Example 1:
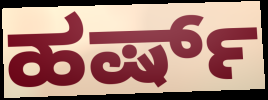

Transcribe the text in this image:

ಹರ್ಷ್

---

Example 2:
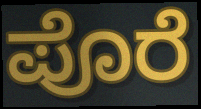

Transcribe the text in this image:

ಪೊರೆ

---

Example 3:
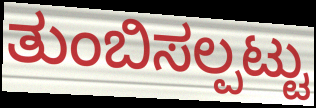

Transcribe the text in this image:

ತುಂಬಿಸಲ್ಪಟ್ಟು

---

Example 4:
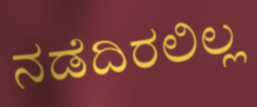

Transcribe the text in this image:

ನಡೆದಿರಲಿಲ್ಲ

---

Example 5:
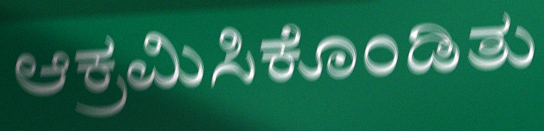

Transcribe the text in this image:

ಆಕ್ರಮಿಸಿಕೊಂಡಿತು